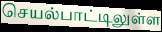
செயல்பாட்டிலுள்ள